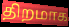
திறமாக